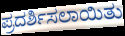
ಪ್ರದರ್ಶಿಸಲಾಯಿತು